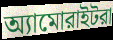
অ্যামোরাইটরা